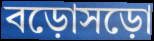
বড়োসড়ো